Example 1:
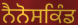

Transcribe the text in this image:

ਨੈਨੋਸਕਿੰਡ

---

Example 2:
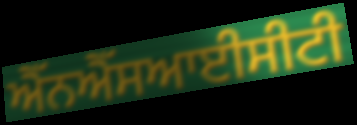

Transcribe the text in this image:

ਐੱਨਐੱਸਆਈਸੀਟੀ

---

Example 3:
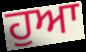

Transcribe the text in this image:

ਹੁਆ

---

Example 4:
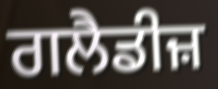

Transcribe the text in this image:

ਗਲੈਡੀਜ਼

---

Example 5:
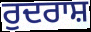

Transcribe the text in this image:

ਰੁਦਰਾਸ਼